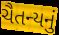
ચૈતન્યનું